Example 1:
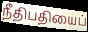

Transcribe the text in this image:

நீதிபதியைப்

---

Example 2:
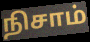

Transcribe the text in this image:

நிசாம்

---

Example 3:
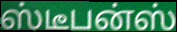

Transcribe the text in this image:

ஸ்டீபன்ஸ்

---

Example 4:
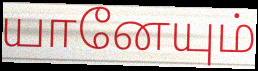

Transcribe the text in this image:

யானேயும்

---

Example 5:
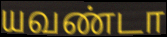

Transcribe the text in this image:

யவண்டா